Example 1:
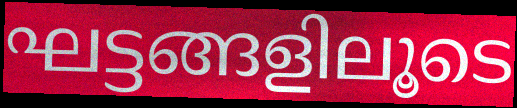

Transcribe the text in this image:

ഘട്ടങ്ങളിലൂടെ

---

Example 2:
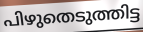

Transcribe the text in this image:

പിഴുതെടുത്തിട്ട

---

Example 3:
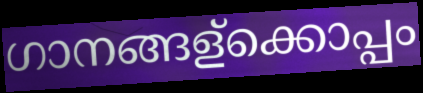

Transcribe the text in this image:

ഗാനങ്ങള്ക്കൊപ്പം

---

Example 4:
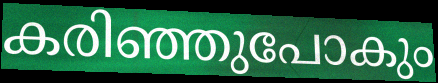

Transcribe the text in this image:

കരിഞ്ഞുപോകും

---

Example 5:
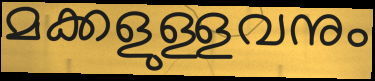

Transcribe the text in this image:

മക്കളുള്ളവനും